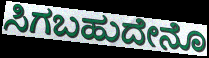
ಸಿಗಬಹುದೇನೊ